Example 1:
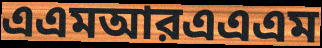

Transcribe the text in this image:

এএমআরএএএম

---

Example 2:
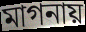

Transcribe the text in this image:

মাগনায়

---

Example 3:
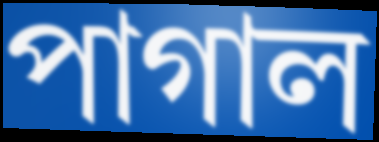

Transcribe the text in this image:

পাগাল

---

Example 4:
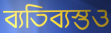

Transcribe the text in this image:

ব্যতিব্যস্তও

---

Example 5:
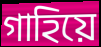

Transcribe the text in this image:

গাহিয়ে